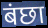
बंछा